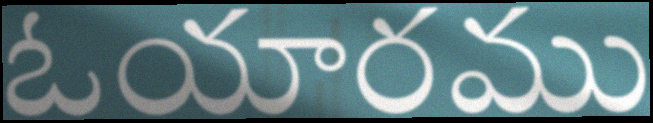
ఓయారము